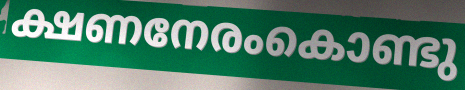
ക്ഷണനേരംകൊണ്ടു